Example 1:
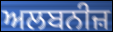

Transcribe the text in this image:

ਅਲਬਨੀਜ਼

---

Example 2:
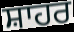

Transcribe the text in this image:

ਸ਼ਾਹਰ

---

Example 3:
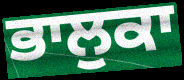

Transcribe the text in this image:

ਭਾਲੁਕਾ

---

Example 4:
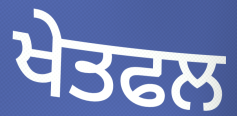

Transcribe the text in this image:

ਖੇਤਫਲ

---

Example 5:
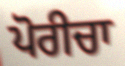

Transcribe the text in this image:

ਪੋਰੀਚਾ